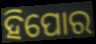
ହିପୋର